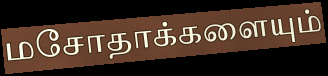
மசோதாக்களையும்